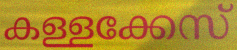
കള്ളക്കേസ്